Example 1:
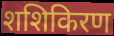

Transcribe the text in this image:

शशिकिरण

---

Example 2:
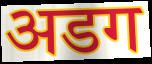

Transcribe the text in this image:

अडग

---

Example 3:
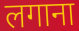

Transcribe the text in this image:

लगाना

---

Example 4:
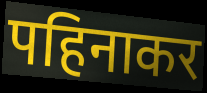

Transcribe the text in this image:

पहिनाकर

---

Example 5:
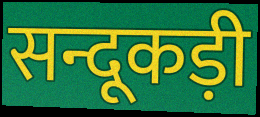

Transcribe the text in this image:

सन्दूकड़ी